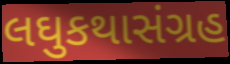
લઘુકથાસંગ્રહ